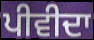
ਪੀਵੀਦਾ